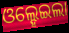
ଓଲ୍ହେଇଲା